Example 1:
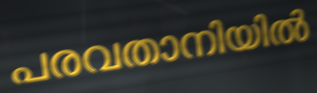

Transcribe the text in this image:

പരവതാനിയിൽ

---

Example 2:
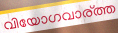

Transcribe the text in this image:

വിയോഗവാര്ത്ത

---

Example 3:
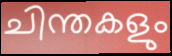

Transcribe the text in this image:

ചിന്തകളും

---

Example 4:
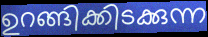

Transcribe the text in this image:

ഉറങ്ങിക്കിടക്കുന്ന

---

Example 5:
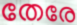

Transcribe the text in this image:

തേരേ